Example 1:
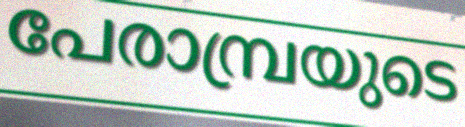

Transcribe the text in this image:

പേരാമ്പ്രയുടെ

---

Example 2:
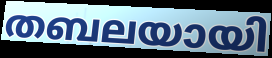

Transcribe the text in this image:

തബലയായി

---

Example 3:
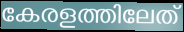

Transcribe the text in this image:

കേരളത്തിലേത്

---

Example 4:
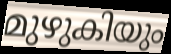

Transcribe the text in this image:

മുഴുകിയും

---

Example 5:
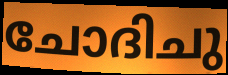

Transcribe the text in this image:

ചോദിചു